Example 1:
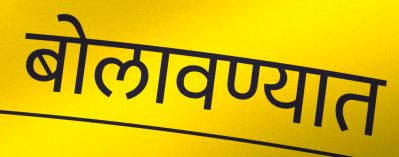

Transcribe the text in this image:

बोलावण्यात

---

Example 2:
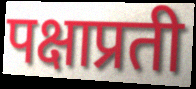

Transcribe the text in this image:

पक्षाप्रती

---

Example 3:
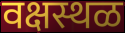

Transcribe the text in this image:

वक्षस्थळ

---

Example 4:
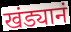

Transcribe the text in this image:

खंड्यानं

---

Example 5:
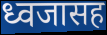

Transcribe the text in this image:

ध्वजासह